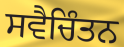
ਸਵੈਚਿੰਤਨ